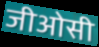
जीओसी